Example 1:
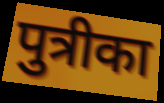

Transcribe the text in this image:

पुत्रीका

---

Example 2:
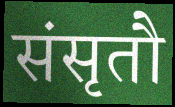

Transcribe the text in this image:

संसृतौ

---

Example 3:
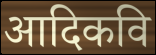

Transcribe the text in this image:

आदिकवि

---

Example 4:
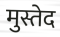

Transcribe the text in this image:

मुस्तेद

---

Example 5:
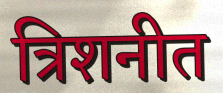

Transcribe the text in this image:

त्रिशनीत